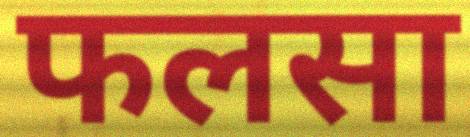
फलसा